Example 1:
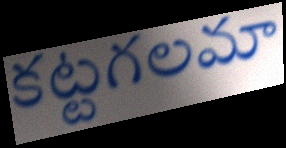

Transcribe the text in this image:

కట్టగలమా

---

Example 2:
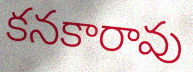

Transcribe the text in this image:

కనకారావు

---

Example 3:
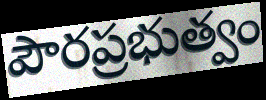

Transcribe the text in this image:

పౌరప్రభుత్వం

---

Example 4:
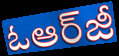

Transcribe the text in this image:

ఓఆర్‌జీ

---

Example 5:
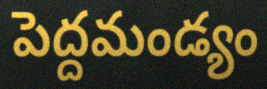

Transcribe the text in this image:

పెద్దమండ్యం